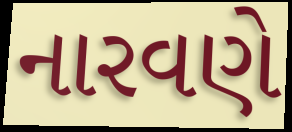
નારવણે